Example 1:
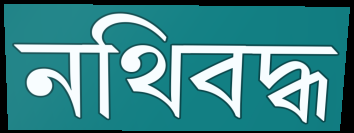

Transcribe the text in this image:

নথিবদ্ধ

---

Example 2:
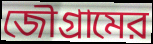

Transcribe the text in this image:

জৌগ্রামের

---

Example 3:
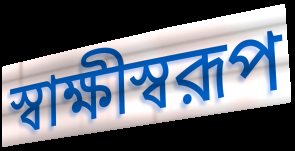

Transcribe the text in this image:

স্বাক্ষীস্বরূপ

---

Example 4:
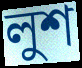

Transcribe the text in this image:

লুশ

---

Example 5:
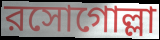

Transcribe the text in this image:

রসোগোল্লা